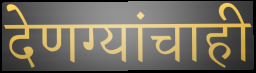
देणग्यांचाही